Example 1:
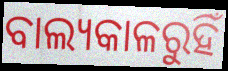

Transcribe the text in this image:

ବାଲ୍ୟକାଳରୁହିଁ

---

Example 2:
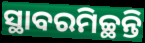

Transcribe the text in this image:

ସ୍ଥାବରମିଚ୍ଛନ୍ତି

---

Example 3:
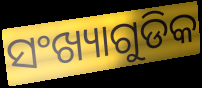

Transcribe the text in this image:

ସଂଖ୍ୟାଗୁଡିକ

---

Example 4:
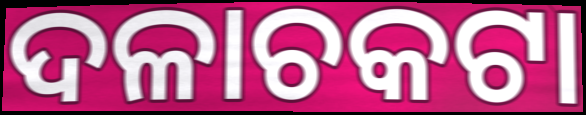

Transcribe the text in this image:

ଦଳାଚକଟା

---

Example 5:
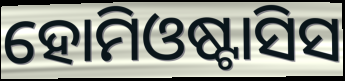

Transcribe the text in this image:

ହୋମିଓଷ୍ଟାସିସ